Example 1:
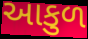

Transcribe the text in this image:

આકુળ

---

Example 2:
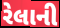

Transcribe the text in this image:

રેલાની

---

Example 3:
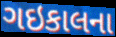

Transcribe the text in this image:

ગઇકાલના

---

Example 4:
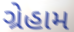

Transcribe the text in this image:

ગ્રેહામ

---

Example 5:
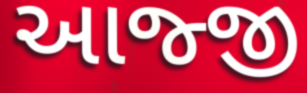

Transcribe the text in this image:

આજ્જી